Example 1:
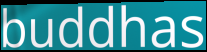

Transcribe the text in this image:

buddhas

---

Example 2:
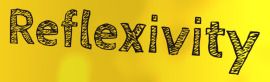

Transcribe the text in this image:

Reflexivity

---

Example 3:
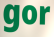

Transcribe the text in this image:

gor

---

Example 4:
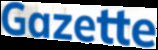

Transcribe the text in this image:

Gazette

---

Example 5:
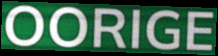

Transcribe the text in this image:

OORIGE